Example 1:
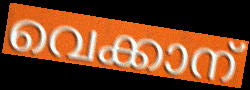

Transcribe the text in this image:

വെക്കാന്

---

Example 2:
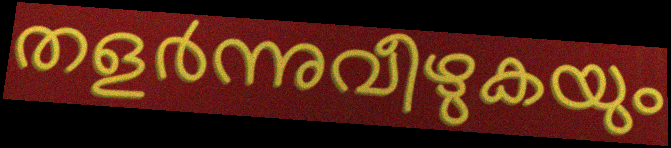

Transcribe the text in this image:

തളർന്നുവീഴുകയും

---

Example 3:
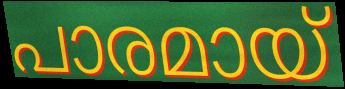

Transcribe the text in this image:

പാരമായ്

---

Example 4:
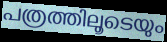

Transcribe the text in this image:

പത്രത്തിലൂടെയും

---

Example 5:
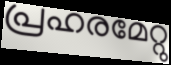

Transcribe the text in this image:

പ്രഹരമേറ്റു